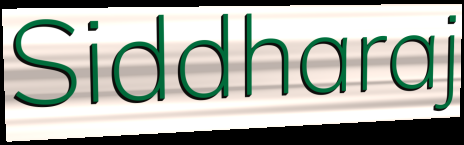
Siddharaj